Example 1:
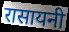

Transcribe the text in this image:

रासायनी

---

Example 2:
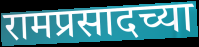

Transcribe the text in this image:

रामप्रसादच्या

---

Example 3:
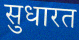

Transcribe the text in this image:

सुधारत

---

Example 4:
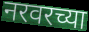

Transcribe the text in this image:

नरवरच्या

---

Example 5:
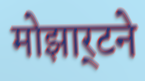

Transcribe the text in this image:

मोझार्टने